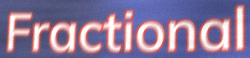
Fractional